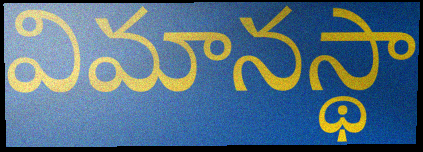
విమానస్థా